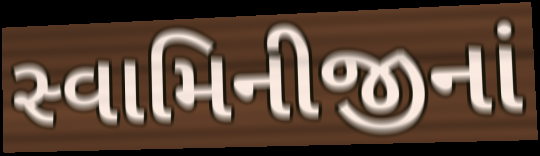
સ્વામિનીજીનાં